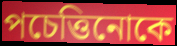
পচেত্তিনোকে